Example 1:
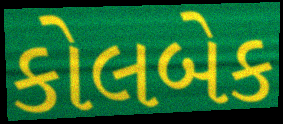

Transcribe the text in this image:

કોલબેક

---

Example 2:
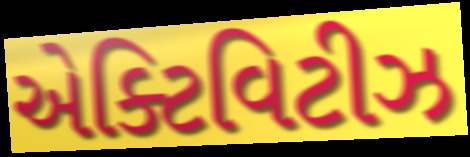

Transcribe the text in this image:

એક્ટિવિટીઝ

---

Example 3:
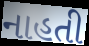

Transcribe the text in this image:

નાહતી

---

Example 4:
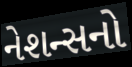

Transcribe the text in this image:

નેશન્સનો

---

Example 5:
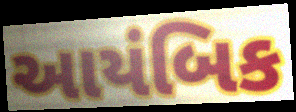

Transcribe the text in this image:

આયંબિક